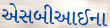
એસબીઆઈના